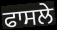
ਫਾਸਲੇ